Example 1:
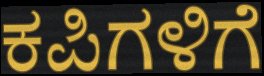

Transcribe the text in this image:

ಕಪಿಗಳಿಗೆ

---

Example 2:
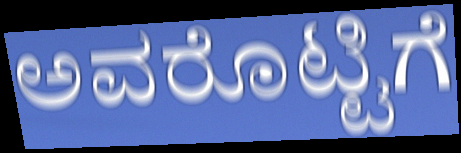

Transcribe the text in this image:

ಅವರೊಟ್ಟಿಗೆ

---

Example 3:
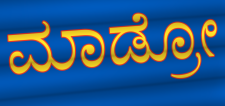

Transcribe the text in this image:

ಮಾಡ್ರೋ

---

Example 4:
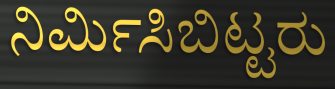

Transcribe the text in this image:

ನಿರ್ಮಿಸಿಬಿಟ್ಟರು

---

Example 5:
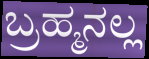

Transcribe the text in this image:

ಬ್ರಹ್ಮನಲ್ಲ